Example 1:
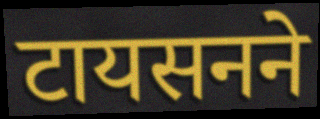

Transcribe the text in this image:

टायसनने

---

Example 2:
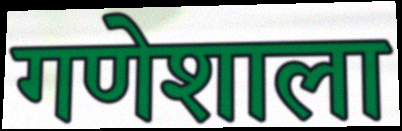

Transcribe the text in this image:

गणेशाला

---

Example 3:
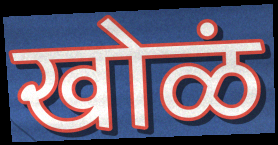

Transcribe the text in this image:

खोळं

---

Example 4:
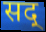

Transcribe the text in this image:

सद्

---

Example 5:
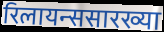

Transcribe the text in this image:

रिलायन्ससारख्या